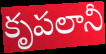
కృపలానీ